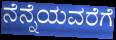
ನೆನ್ನೆಯವರೆಗೆ